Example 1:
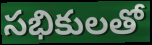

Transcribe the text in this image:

సభికులతో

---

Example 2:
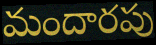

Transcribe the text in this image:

మందారపు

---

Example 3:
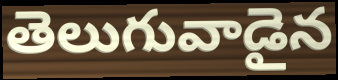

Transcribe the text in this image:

తెలుగువాడైన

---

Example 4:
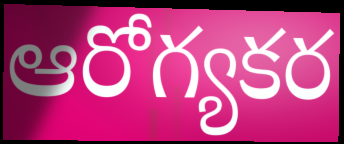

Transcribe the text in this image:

ఆరోగ్యకర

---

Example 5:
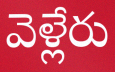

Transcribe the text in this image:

వెళ్లేరు